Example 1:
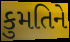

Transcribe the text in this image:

કુમતિને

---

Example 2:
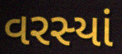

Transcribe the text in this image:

વરસ્યાં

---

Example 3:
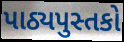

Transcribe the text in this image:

પાઠ્યપુસ્તકો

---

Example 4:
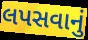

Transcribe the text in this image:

લપસવાનું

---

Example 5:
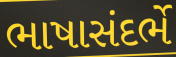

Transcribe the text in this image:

ભાષાસંદર્ભે